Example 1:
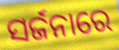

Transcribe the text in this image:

ସର୍ଜନାରେ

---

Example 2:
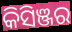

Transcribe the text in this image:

କିସିଞ୍ଜର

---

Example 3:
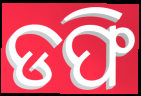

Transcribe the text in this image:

ଡଫି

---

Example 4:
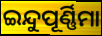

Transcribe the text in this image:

ଇନ୍ଦୁପୂର୍ଣ୍ଣିମା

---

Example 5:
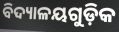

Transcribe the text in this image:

ବିଦ୍ୟାଳୟଗୁଡ଼ିକ